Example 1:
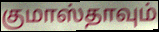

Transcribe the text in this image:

குமாஸ்தாவும்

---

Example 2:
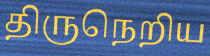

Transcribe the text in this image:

திருநெறிய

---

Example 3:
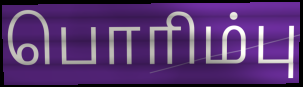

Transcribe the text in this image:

பொரிம்பு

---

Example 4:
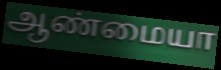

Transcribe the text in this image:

ஆண்மையா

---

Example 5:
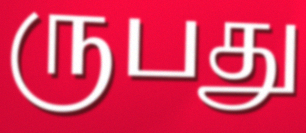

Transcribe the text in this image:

ருபது